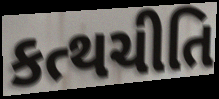
કત્થચીતિ